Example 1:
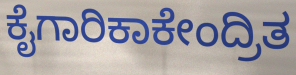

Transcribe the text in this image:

ಕೈಗಾರಿಕಾಕೇಂದ್ರಿತ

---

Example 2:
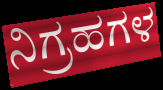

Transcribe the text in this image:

ನಿಗ್ರಹಗಳ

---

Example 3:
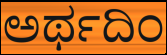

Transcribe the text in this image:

ಅರ್ಥದಿಂ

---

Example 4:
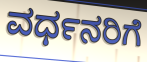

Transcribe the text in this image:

ವರ್ಧನರಿಗೆ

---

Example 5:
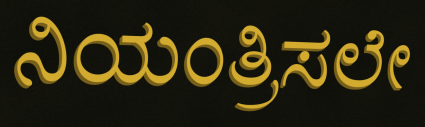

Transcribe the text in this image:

ನಿಯಂತ್ರಿಸಲೇ